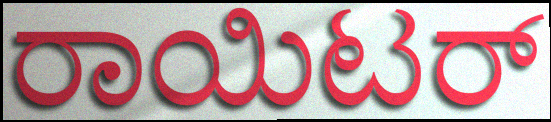
ರಾಯಿಟರ್